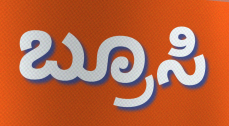
ಬ್ರೂಸಿ